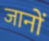
जानों